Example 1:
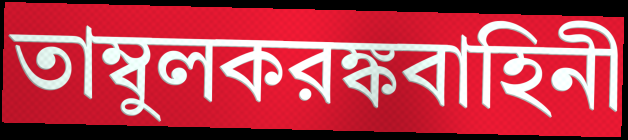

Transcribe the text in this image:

তাম্বুলকরঙ্কবাহিনী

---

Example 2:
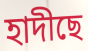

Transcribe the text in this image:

হাদীছে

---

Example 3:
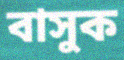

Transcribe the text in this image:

বাসুক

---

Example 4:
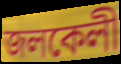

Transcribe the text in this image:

জলকেলী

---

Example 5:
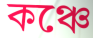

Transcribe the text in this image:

কঞ্চে